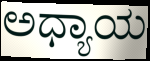
ಅಧ್ಯಾಯ